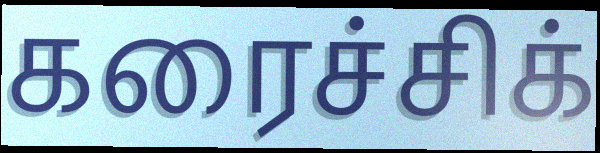
கரைச்சிக்